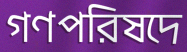
গণপরিষদে